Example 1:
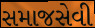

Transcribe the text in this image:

સમાજસેવી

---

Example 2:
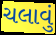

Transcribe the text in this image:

ચલાવું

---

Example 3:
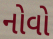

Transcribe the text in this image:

નોવો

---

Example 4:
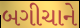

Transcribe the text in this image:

બગીચાને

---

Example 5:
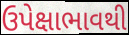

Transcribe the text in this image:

ઉપેક્ષાભાવથી